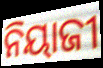
ନିୟାଜୀ